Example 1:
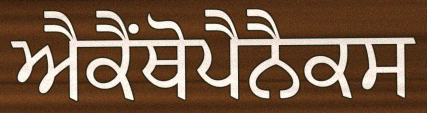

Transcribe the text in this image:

ਐਕੈਂਥੋਪੈਨੈਕਸ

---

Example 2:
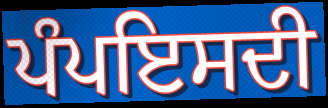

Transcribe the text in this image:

ਪੰਪਇਸਦੀ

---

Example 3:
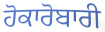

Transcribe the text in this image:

ਹੋਕਾਰੋਬਾਰੀ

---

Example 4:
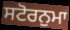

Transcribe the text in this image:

ਸਟੋਰਨੁਮਾ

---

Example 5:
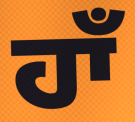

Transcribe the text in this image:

ਹਾਁ